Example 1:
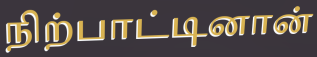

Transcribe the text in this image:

நிற்பாட்டினான்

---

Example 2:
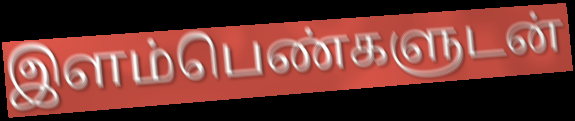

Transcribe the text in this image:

இளம்பெண்களுடன்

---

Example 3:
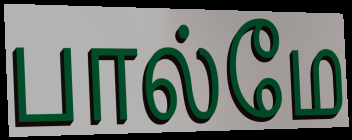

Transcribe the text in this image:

பால்மே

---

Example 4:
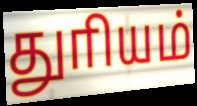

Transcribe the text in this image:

துரியம்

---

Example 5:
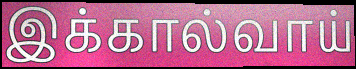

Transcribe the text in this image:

இக்கால்வாய்